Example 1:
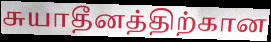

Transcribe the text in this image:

சுயாதீனத்திற்கான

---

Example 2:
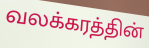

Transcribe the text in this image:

வலக்கரத்தின்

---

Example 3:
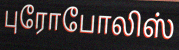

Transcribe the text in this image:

புரோபோலிஸ்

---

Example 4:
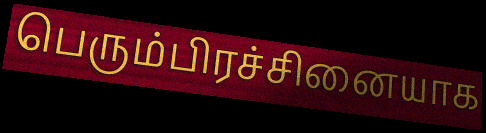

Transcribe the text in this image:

பெரும்பிரச்சினையாக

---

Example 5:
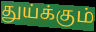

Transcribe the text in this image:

துய்க்கும்